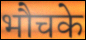
भौचके